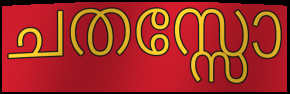
ചതസ്സോ